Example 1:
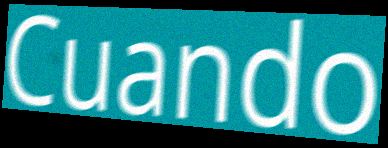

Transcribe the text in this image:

Cuando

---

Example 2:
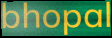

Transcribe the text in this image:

bhopal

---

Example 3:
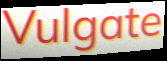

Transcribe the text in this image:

Vulgate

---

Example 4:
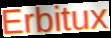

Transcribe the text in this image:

Erbitux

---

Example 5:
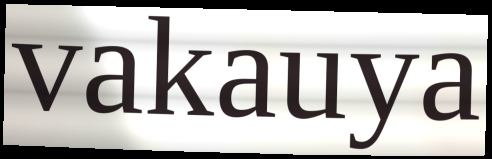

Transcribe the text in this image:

vakauya